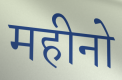
महीनो